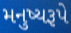
મનુષ્યરૂપે